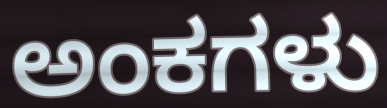
ಅಂಕಗಳು